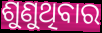
ଶୁଣୁଥିବାର